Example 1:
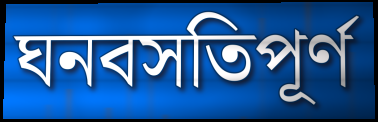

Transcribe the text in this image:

ঘনবসতিপূর্ণ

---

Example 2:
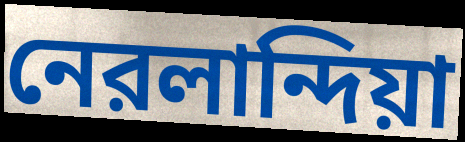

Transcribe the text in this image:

নেরলান্দিয়া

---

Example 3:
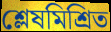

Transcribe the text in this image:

শ্লেষমিশ্রিত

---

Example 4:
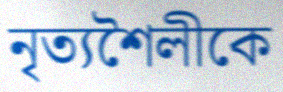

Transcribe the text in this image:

নৃত্যশৈলীকে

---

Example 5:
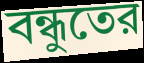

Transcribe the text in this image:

বন্ধুতের